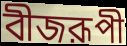
বীজরূপী